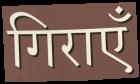
गिराएँ